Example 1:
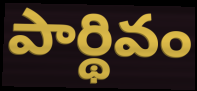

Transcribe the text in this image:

పార్థివం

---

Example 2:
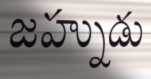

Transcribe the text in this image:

జహ్నుడు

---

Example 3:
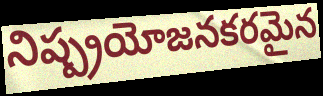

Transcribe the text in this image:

నిష్ప్రయోజనకరమైన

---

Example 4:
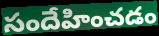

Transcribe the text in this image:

సందేహించడం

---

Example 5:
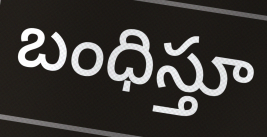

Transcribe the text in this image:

బంధిస్తూ